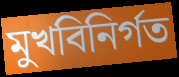
মুখবিনির্গত